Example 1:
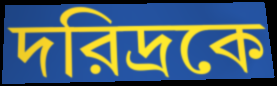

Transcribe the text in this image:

দরিদ্রকে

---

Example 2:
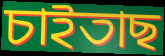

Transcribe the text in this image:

চাইতাছ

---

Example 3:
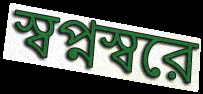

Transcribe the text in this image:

স্বপ্নস্বরে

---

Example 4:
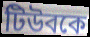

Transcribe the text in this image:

টিউবকে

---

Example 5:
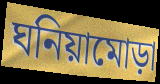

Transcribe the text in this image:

ঘনিয়ামোড়া